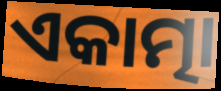
ଏକାତ୍ମା